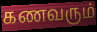
கணவரும்